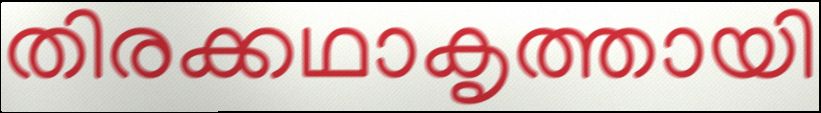
തിരക്കഥാകൃത്തായി